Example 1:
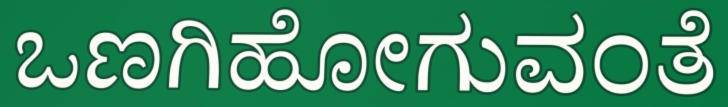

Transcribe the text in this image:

ಒಣಗಿಹೋಗುವಂತೆ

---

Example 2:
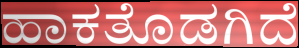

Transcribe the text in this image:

ಹಾಕತೊಡಗಿದೆ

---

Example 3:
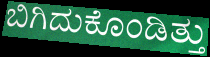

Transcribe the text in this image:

ಬಿಗಿದುಕೊಂಡಿತ್ತು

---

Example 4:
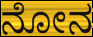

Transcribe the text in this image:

ನೋನ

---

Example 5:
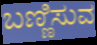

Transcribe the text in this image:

ಬಣ್ಣಿಸುವ